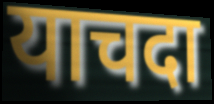
याचदा